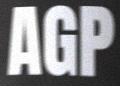
AGP